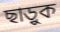
ছাড়ুক